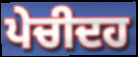
ਪੇਚੀਦਹ